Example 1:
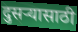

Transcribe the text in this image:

दुसऱ्यासाठी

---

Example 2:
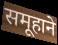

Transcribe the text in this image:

समूहाने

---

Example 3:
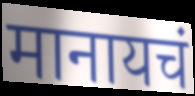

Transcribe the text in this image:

मानायचं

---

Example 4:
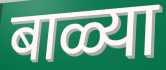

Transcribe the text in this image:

बाळ्या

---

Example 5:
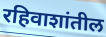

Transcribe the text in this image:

रहिवाशांतील